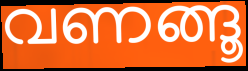
വണങ്ങൂ